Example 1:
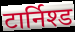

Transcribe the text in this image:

टार्निश्ड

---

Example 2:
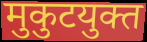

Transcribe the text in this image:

मुकुटयुक्त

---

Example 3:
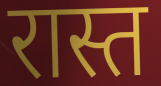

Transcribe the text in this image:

रास्त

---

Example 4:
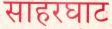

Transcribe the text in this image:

साहरघाट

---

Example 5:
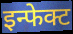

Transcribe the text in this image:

इन्फेक्ट